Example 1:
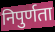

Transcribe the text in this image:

निपुर्णता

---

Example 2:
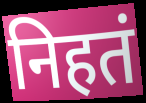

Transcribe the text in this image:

निहतं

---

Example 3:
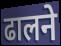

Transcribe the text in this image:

ढालने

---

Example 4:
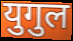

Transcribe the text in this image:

युगुल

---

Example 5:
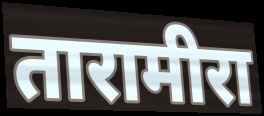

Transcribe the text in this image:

तारामीरा